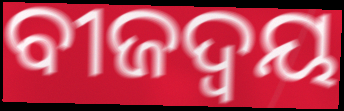
ବୀଜଦ୍ଵୟ